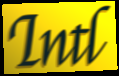
Intl